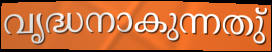
വൃദ്ധനാകുന്നതു്